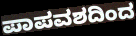
ಪಾಪವಶದಿಂದ